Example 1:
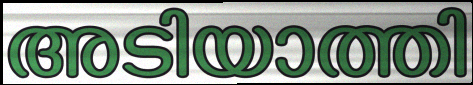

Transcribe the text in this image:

അടിയാത്തി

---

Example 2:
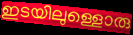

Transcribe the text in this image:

ഇടയിലുള്ളൊരു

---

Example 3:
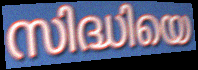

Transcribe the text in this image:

സിദ്ധിയെ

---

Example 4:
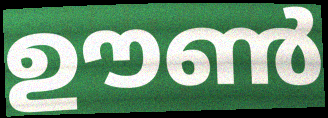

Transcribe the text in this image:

ഊൺ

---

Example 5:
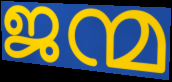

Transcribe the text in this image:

ജന്മ